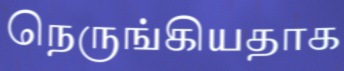
நெருங்கியதாக